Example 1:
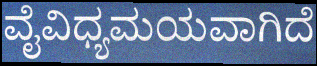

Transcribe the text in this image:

ವೈವಿಧ್ಯಮಯವಾಗಿದೆ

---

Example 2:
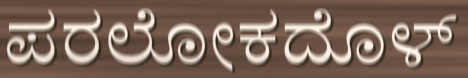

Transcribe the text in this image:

ಪರಲೋಕದೊಳ್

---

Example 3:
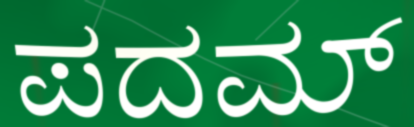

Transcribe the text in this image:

ಪದಮ್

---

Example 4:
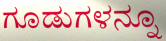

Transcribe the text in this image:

ಗೂಡುಗಳನ್ನೂ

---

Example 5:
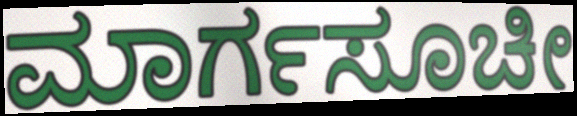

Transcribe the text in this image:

ಮಾರ್ಗಸೂಚೀ